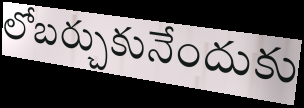
లోబర్చుకునేందుకు